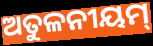
ଅତୁଳନୀୟମ୍